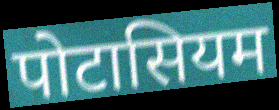
पोटासियम